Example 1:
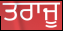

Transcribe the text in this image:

ਤਰਾਜੂ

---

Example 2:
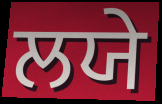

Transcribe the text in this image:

ਲਯੇ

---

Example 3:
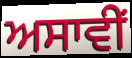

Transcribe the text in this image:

ਅਸਾਵੀਂ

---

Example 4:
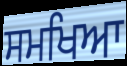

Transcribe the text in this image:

ਸਮਖਿਆ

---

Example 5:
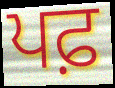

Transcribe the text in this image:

ਪਫ਼